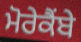
ਮੋਰੇਕੈਂਬੇ